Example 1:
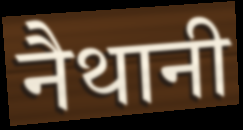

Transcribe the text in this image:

नैथानी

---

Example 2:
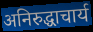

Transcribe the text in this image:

अनिरुद्धाचार्य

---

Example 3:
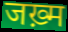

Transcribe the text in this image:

जख़्म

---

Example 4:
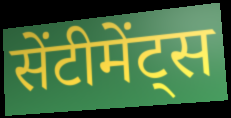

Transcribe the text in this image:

सेंटीमेंट्स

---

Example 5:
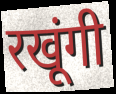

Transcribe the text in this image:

रखूंगी